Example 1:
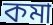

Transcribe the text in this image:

কমা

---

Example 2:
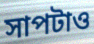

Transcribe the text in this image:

সাপটাও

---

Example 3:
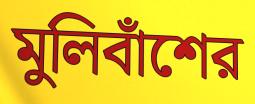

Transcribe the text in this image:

মুলিবাঁশের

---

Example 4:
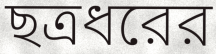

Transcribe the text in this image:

ছত্রধরের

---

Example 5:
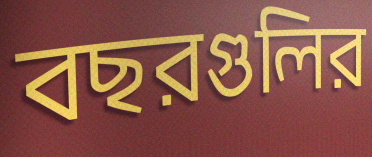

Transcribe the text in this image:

বছরগুলির